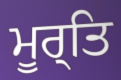
ਮੂਰ੍ਤਿ